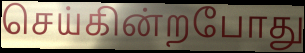
செய்கின்றபோது